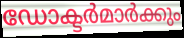
ഡോക്ടർമാർക്കും